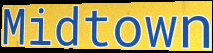
Midtown